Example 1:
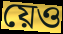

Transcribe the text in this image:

য়েও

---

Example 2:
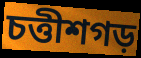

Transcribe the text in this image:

চত্তীশগড়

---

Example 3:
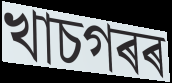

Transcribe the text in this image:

খাচগৰৰ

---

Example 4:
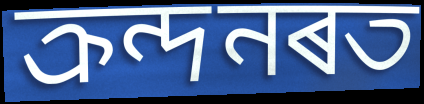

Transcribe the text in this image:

ক্ৰন্দনৰত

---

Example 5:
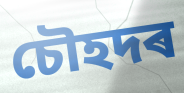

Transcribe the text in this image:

চৌহদৰ